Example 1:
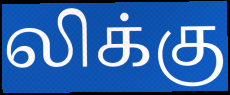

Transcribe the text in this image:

லிக்கு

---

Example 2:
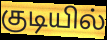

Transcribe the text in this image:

குடியில்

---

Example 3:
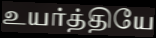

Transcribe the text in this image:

உயர்த்தியே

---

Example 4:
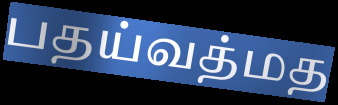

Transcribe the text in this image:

பதய்வத்மத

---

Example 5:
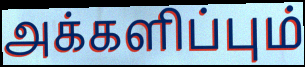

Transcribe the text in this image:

அக்களிப்பும்